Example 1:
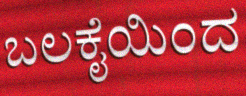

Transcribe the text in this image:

ಬಲಕೈಯಿಂದ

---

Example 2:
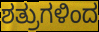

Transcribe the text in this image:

ಶತ್ರುಗಳಿಂದ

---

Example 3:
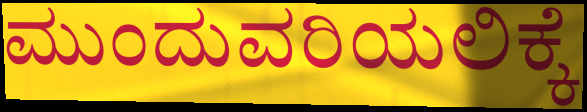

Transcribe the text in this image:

ಮುಂದುವರಿಯಲಿಕ್ಕೆ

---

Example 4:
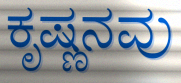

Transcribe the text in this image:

ಕೃಷ್ಣನವು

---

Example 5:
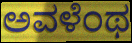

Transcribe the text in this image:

ಅವಳೆಂಥ